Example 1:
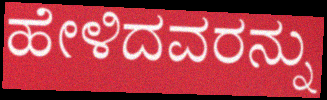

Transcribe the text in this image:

ಹೇಳಿದವರನ್ನು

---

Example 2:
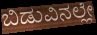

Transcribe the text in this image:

ಬಿಡುವಿನಲ್ಲೇ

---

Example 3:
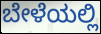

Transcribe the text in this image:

ಬೇಳೆಯಲ್ಲಿ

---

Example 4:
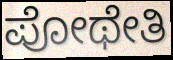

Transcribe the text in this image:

ಪೋಥೇತಿ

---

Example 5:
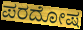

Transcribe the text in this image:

ಪರದೋಷ